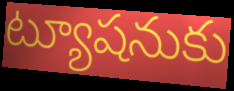
ట్యూషనుకు